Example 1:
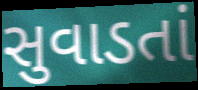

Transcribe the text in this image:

સુવાડતાં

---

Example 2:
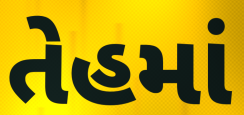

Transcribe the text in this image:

તેહમાં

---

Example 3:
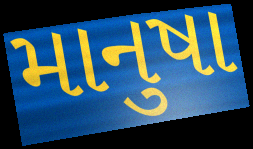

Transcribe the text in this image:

માનુષા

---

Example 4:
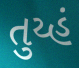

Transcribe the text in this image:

તુય્હં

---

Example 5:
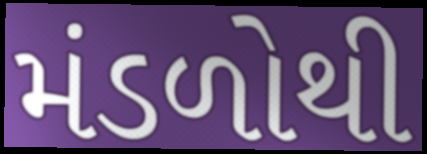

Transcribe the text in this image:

મંડળોથી